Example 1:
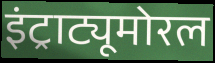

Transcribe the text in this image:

इंट्राट्यूमोरल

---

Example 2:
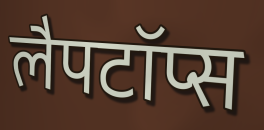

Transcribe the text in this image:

लैपटॉप्‍स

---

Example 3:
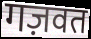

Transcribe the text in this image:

गज़वत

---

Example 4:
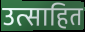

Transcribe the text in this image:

उत्साहित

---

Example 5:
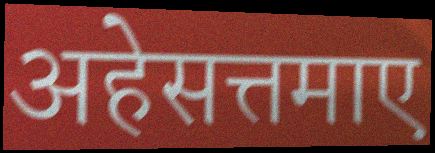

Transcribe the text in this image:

अहेसत्तमाए